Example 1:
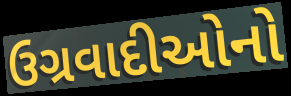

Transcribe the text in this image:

ઉગ્રવાદીઓનો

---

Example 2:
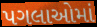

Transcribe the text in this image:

પગલાઓમાં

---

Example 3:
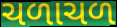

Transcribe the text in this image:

ચળાચળ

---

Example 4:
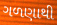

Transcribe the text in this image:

ગળણાથી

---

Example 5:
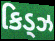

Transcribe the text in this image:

કિડ્ઝ